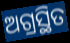
ଅଗ୍ରସ୍ଥିତ